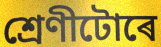
শ্ৰেণীটোৰে